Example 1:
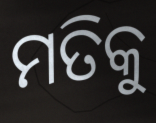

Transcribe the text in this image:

ମତିକୁ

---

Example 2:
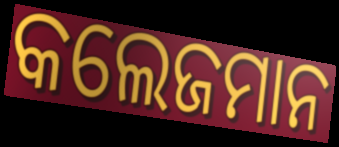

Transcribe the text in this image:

କଲେଜମାନ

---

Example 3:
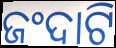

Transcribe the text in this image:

ଜଂଦାଟି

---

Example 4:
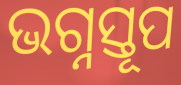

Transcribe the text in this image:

ଭଗ୍ନସ୍ତୂପ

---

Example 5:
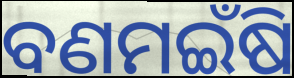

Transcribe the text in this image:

ବଣମଇଁଷି